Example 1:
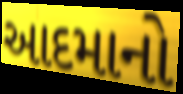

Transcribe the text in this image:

આદમાનો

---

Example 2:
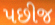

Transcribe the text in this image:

પછીજ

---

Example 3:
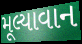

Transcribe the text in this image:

મૂલ્યાવાન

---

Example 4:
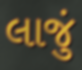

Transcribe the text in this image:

લાજું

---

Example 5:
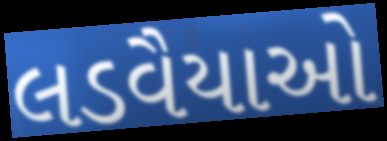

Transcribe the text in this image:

લડવૈયાઓ